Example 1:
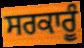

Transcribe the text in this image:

ਸਰਕਾਰੂੰ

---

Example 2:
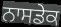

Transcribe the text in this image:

ਨਾਸਡੇਕ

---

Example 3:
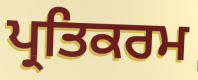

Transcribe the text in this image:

ਪ੍ਰਤਿਕਰਮ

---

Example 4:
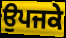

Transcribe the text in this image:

ਉਪਜਕੇ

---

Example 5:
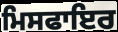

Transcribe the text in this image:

ਮਿਸਫਾਇਰ